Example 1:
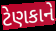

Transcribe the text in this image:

ટેણકાને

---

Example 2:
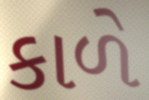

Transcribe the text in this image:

કાળે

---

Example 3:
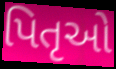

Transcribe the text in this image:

પિતૃઓ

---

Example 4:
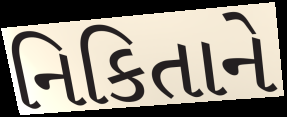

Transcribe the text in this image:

નિકિતાને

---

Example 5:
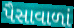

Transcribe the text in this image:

પૈસાવાળાં